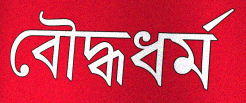
বৌদ্ধধর্ম